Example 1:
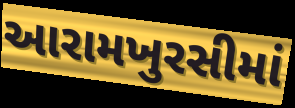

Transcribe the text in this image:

આરામખુરસીમાં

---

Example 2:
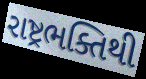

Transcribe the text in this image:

રાષ્ટ્રભક્તિથી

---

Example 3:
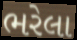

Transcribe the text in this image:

ભરેલા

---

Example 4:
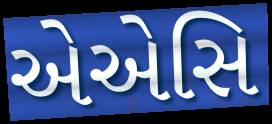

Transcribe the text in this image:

એએસિ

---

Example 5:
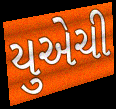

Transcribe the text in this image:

યુએચી